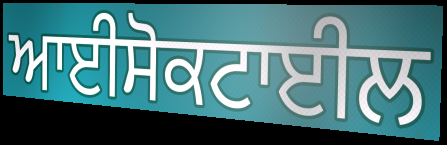
ਆਈਸੋਕਟਾਈਲ